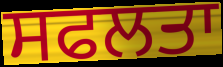
ਸਫਲਤਾ